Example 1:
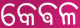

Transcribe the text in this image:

କେଵଳ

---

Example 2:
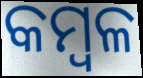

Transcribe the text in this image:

କମ୍ବଳ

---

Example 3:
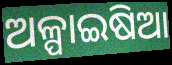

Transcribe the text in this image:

ଅଳ୍ପାଇଷିଆ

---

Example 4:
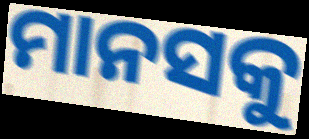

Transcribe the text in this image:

ମାନସକୁ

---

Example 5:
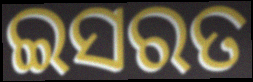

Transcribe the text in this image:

ଇସରତ